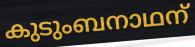
കുടുംബനാഥന്